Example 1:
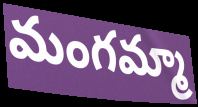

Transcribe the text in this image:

మంగమ్మా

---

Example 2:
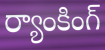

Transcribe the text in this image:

ర్యాంకింగ్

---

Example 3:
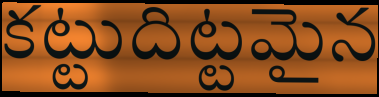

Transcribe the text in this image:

కట్టుదిట్టమైన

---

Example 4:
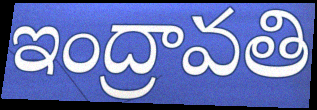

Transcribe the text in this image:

ఇంద్రావతి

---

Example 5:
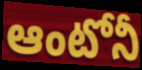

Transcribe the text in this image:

ఆంటోనీ